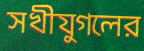
সখীযুগলের